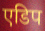
एडिप